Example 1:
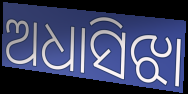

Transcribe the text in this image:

ଅଧାସିଝା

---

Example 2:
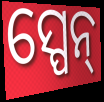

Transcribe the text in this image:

ସ୍ପେନ୍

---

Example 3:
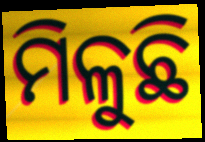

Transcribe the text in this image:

ମିଳୁଛି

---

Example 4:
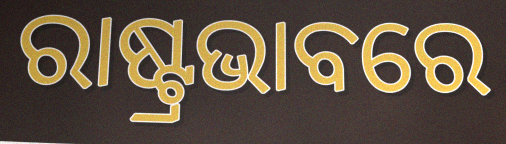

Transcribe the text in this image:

ରାଷ୍ଟ୍ରଭାବରେ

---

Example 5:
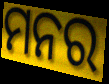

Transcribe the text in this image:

ମନର